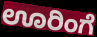
ಊರಿಂಗೆ